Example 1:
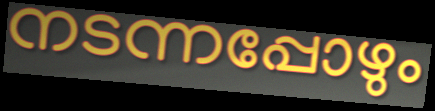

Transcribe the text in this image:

നടന്നപ്പോഴും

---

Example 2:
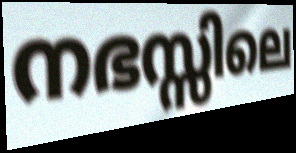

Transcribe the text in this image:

നഭസ്സിലെ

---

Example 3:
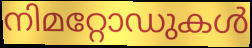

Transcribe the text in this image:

നിമറ്റോഡുകൾ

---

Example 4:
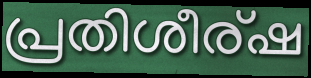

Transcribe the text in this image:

പ്രതിശീര്ഷ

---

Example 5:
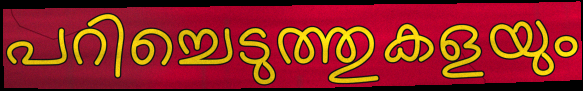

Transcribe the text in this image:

പറിച്ചെടുത്തുകളയും